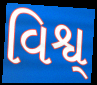
વિશ્વ્